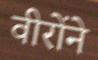
वीरोंने